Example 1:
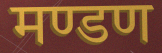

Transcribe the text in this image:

मण्डण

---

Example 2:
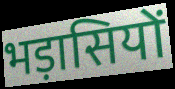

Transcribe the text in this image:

भड़ासियों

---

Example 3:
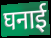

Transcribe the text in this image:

घनाई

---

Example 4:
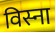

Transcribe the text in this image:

विस्ना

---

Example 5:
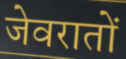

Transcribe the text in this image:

जेवरातों